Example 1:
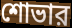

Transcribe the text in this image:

শোভার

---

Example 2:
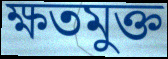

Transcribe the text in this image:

ক্ষতমুক্ত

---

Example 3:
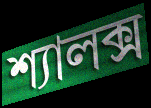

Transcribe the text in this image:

শ্যালক্স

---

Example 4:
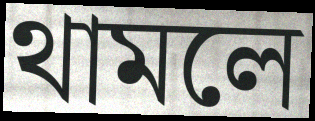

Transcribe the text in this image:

থামলে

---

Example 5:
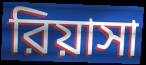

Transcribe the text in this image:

রিয়াসা